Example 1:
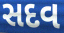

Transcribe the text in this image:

સદવ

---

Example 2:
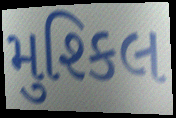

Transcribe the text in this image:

મુશ્કિલ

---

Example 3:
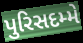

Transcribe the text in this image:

પુરિસદમ્મે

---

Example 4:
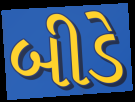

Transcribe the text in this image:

બીડે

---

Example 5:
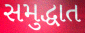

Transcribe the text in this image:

સમુદ્ધાત